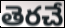
తెరచే